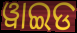
ୱାଇଡ